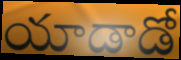
యాడాడో